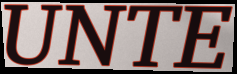
UNTE